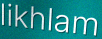
likhlam